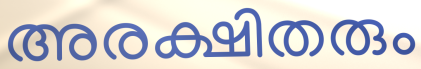
അരക്ഷിതരും